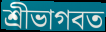
শ্রীভাগবত